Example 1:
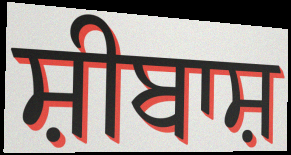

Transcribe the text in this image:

ਸ਼ੀਬਾਸ਼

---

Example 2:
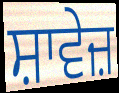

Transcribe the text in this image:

ਸ਼ਾਵੇਜ਼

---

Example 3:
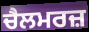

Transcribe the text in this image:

ਚੈਲਮਰਜ਼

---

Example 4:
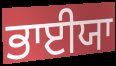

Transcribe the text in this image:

ਭਾਈਯਾ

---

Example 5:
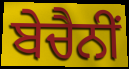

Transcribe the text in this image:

ਬੇਚੈਨੀਂ